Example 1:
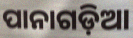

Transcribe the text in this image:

ପାନାଗଡ଼ିଆ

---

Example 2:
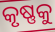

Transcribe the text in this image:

କୃଷ୍ଣକୁ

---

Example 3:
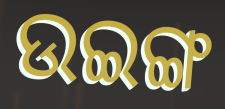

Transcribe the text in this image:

ଉଇଙ୍ଗ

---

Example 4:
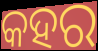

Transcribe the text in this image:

କହର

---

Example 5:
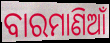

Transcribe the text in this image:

ବାରମାଣିଆଁ